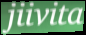
jiivita